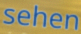
sehen